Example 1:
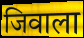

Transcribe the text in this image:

जिवाला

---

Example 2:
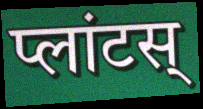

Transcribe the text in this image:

प्लांटस्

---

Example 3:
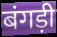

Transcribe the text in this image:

बंगड़ी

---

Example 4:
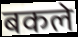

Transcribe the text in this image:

बकले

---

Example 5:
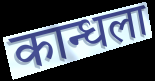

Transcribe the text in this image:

कान्धला